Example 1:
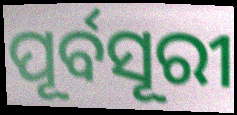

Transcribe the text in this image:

ପୂର୍ବସୂରୀ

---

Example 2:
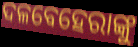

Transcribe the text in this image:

ଦଳବେହେରାଙ୍କୁ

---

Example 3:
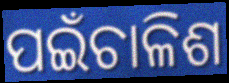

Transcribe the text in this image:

ପଇଁଚାଳିଶ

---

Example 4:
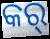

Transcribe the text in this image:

କର୍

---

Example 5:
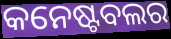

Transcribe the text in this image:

କନେଷ୍ଟବଲର